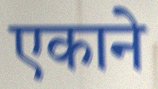
एकाने